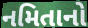
નમિતાનો